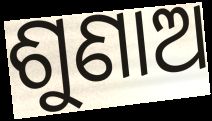
ଶୁଣାଅ